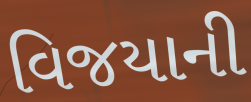
વિજયાની